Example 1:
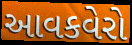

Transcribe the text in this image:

આવકવેરો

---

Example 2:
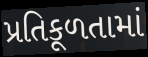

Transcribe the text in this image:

પ્રતિકૂળતામાં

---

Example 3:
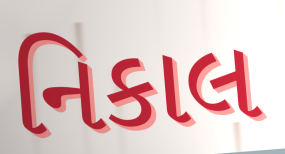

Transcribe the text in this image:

નિકાલ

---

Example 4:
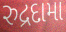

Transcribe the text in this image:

રુદ્રદામા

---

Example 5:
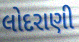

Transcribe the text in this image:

લોદરાણી